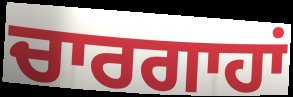
ਚਾਰਗਾਹਾਂ